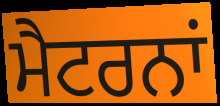
ਮੈਟਰਨਾਂ